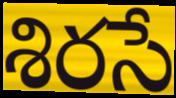
శిరసే